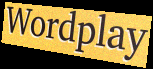
Wordplay